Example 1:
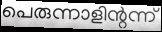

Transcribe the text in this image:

പെരുന്നാളിന്റന്ന്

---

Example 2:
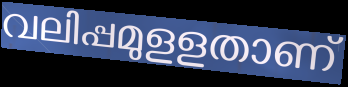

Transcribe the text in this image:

വലിപ്പമുളളതാണ്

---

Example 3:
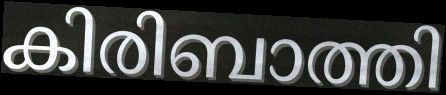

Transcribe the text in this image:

കിരിബാത്തി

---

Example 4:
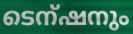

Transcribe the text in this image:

ടെന്ഷനും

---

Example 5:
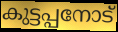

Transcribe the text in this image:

കുട്ടപ്പനോട്